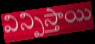
విన్పిస్తాయి